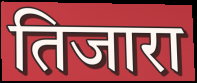
तिजारा